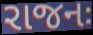
રાજનઃ